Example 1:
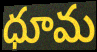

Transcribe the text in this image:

ధూమ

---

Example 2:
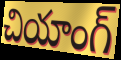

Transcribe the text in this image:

చియాంగ్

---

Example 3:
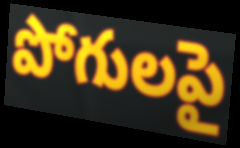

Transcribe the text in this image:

పోగులపై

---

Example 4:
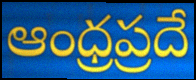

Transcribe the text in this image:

ఆంధ్రప్రదే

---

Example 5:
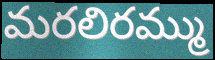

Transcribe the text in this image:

మరలిరమ్ము